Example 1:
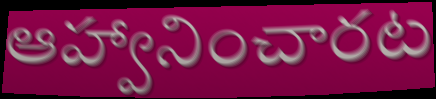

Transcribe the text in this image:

ఆహ్వానించారట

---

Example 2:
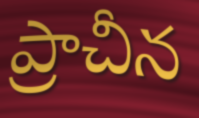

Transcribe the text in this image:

ప్రాచీన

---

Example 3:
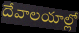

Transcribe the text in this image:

దేవాలయాల్లో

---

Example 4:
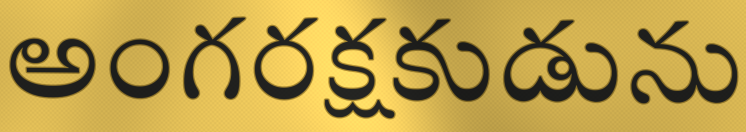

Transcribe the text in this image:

అంగరక్షకుడును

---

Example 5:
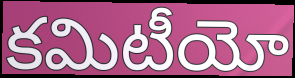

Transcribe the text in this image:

కమిటీయో